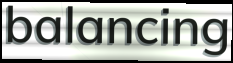
balancing